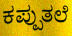
ಕಪ್ಪುತಲೆ